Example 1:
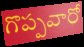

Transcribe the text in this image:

గొప్పవారో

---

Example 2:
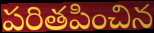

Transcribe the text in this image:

పరితపించిన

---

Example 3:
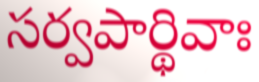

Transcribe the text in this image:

సర్వపార్థివాః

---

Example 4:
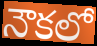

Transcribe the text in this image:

నౌకలో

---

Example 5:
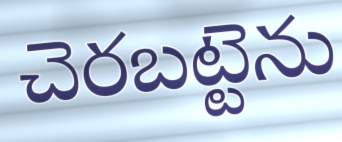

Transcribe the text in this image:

చెరబట్టెను